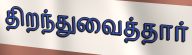
திறந்துவைத்தார்